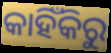
କାହିଁକିରୁ